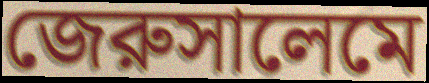
জেরুসালেমে